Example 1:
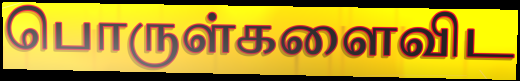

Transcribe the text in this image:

பொருள்களைவிட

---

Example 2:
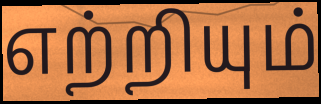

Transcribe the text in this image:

எற்றியும்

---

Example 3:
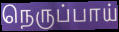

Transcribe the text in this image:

நெருப்பாய்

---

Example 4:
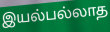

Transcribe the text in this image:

இயல்பல்லாத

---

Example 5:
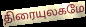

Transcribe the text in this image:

திரையுலகமே